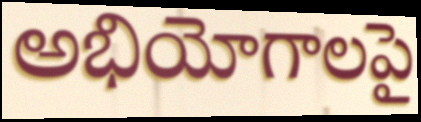
అభియోగాలపై